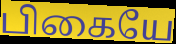
பிகையே